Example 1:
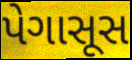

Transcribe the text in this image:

પેગાસૂસ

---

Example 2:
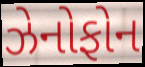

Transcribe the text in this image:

ઝેનોફોન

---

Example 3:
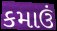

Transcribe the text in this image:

કમાઉં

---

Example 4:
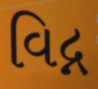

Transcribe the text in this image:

વિદ્ન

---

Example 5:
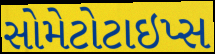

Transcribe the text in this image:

સોમેટોટાઇપ્સ